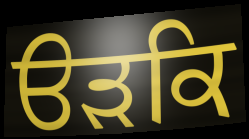
ੳੜਕਿ